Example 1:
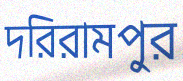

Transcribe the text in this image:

দরিরামপুর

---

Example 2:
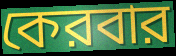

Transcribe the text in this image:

কেরবার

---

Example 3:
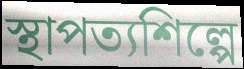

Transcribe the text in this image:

স্থাপত্যশিল্পে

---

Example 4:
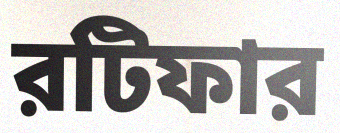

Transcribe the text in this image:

রটিফার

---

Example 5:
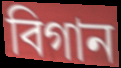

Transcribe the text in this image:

বিগান